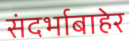
संदर्भाबाहेर